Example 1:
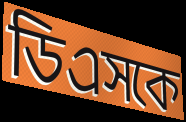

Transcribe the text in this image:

ডিএসকে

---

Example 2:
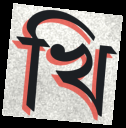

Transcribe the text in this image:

খি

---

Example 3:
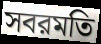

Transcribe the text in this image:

সবরমতি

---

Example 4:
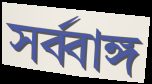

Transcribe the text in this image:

সর্ব্বাঙ্গ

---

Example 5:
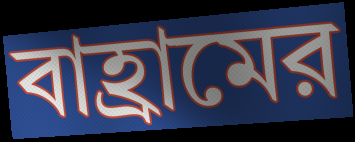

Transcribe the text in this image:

বাহ্রামের